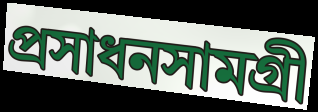
প্রসাধনসামগ্রী